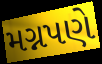
મગ્નપણે